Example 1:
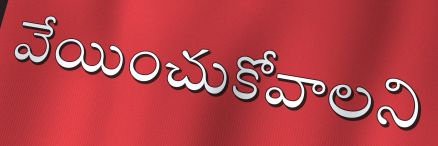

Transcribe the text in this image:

వేయించుకోవాలని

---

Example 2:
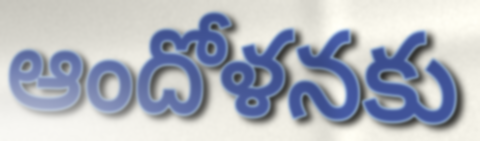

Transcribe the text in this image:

ఆందోళనకు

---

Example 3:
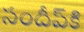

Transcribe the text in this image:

సందీప్‌కి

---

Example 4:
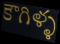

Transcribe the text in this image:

కౌగిళ్ళ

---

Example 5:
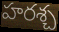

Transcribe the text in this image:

హరశ్చ